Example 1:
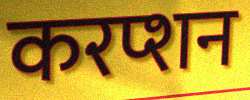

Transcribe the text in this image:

करप्शन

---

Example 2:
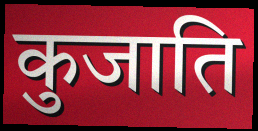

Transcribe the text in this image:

कुजाति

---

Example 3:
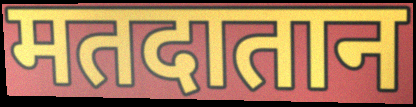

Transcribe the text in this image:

मतदातान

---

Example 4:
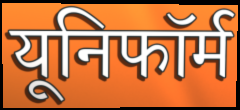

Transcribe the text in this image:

यूनिफॉर्म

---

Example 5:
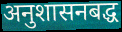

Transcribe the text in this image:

अनुशासनबद्ध